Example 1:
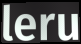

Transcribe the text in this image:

leru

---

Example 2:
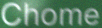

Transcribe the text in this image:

Chome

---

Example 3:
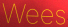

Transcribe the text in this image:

Wees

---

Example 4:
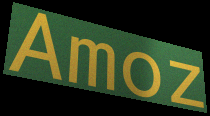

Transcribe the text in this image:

Amoz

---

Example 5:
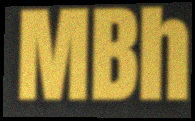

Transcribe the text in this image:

MBh